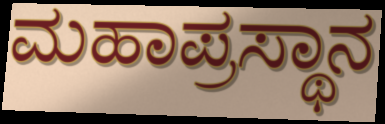
ಮಹಾಪ್ರಸ್ಥಾನ